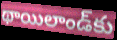
థాయిలాండ్‌కు